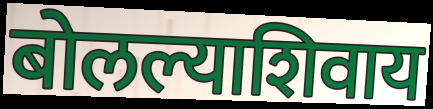
बोलल्याशिवाय